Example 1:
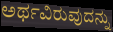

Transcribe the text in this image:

ಅರ್ಥವಿರುವುದನ್ನು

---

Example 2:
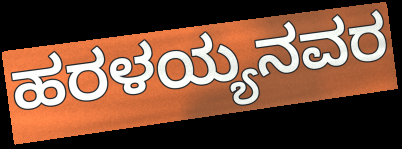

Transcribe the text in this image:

ಹರಳಯ್ಯನವರ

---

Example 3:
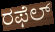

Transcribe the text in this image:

ರಫೆಲ್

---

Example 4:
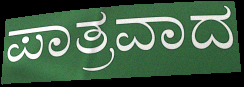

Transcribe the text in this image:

ಪಾತ್ರವಾದ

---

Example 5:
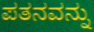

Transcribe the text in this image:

ಪತನವನ್ನು